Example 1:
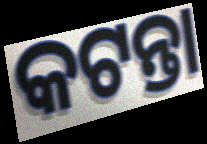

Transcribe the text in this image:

କଟନ୍ତା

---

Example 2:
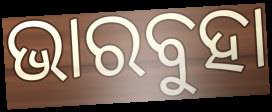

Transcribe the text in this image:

ଭାରବୁହା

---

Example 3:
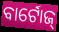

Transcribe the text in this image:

ବାର୍ଟୋଜ୍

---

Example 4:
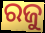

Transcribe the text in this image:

ରଜୁ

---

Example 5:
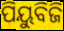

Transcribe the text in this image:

ପିୟୁବିଜି